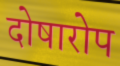
दोषारोप